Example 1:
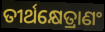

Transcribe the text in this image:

ତୀର୍ଥକ୍ଷେତ୍ରାଣଂ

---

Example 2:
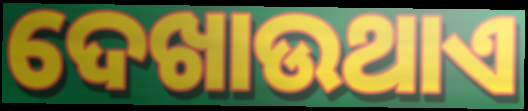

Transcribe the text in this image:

ଦେଖାଉଥାଏ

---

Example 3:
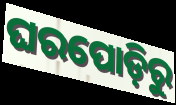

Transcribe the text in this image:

ଘରପୋଡ଼ିରୁ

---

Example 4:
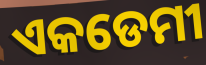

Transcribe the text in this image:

ଏକଡେମୀ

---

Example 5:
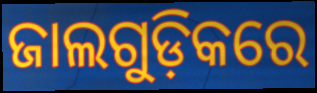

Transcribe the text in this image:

ଜାଲଗୁଡ଼ିକରେ